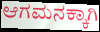
ಆಗಮನಕ್ಕಾಗಿ